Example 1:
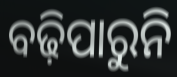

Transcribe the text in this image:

ବଢ଼ିପାରୁନି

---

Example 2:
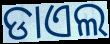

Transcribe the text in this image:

ଡାଏଲ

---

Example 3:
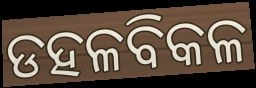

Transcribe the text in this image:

ଡହଳବିକଳ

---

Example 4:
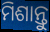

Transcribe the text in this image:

ମିଶାନ୍ତୁ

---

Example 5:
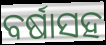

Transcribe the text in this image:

ବର୍ଷାସହ